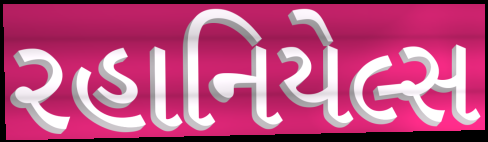
રહાનિયેલ્સ